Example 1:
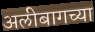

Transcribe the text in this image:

अलीबागच्या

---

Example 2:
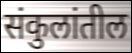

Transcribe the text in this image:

संकुलांतील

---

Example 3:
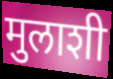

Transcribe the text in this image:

मुलाशी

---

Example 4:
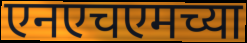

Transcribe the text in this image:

एनएचएमच्या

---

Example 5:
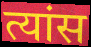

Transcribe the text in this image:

त्यांस